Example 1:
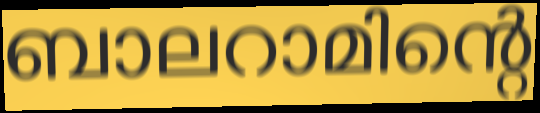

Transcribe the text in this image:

ബാലറാമിന്റെ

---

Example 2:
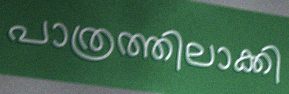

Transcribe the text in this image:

പാത്രത്തിലാക്കി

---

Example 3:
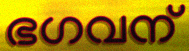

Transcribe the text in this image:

ഭഗവന്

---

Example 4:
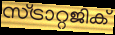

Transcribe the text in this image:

സ്ട്രാറ്റജിക്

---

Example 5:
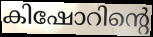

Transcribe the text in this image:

കിഷോറിന്റെ